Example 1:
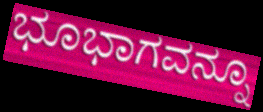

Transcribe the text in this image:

ಭೂಭಾಗವನ್ನೂ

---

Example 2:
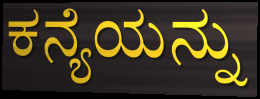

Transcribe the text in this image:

ಕನ್ಯೆಯನ್ನು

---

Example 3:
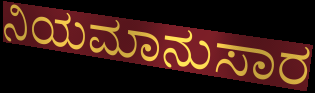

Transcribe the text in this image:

ನಿಯಮಾನುಸಾರ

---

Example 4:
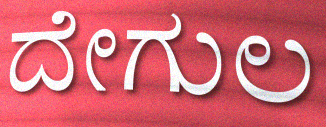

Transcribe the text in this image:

ದೇಗುಲ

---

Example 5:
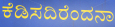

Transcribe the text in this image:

ಕೆಡಿಸದಿರೆಂದನಾ